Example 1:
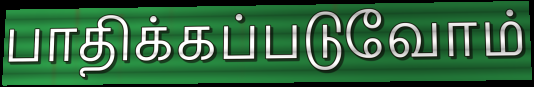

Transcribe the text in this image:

பாதிக்கப்படுவோம்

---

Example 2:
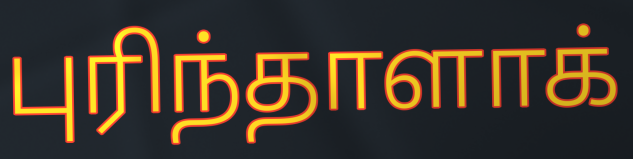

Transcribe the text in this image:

புரிந்தாளாக்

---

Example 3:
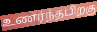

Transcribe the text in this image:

உணர்ந்தபிறகு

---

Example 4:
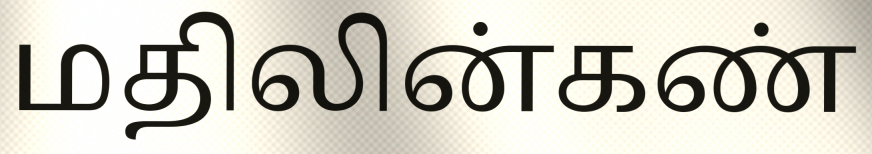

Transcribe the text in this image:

மதிலின்கண்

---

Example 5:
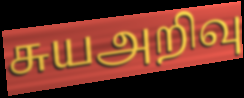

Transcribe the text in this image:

சுயஅறிவு